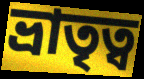
ভ্রাতৃত্ব